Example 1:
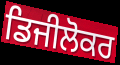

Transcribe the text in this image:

ਡਿਜੀਲੋਕਰ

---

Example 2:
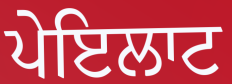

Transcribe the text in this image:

ਪੇਇਲਾਟ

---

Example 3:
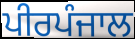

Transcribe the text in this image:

ਪੀਰਪੰਜਾਲ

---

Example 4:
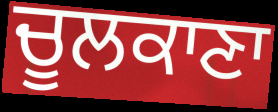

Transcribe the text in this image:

ਚੂਲਕਾਣਾ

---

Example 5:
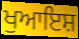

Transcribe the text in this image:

ਖੁਆਇਸ਼